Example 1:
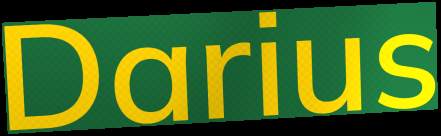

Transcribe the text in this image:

Darius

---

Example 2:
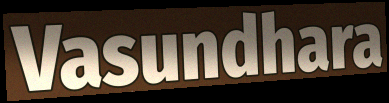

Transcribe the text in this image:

Vasundhara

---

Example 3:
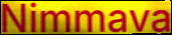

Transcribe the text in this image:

Nimmava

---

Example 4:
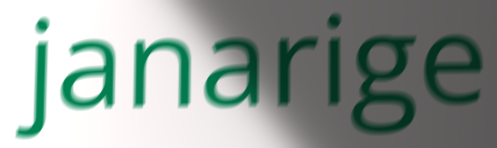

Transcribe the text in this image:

janarige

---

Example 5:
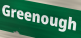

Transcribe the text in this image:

Greenough